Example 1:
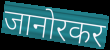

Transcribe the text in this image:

जानोरकर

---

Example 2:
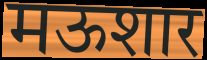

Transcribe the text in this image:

मऊशार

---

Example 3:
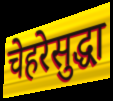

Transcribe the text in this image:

चेहरेसुद्धा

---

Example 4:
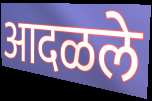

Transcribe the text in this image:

आदळले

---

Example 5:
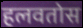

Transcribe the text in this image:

हलवतोस